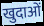
खुदाओं